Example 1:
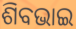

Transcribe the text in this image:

ଶିବଭାଇ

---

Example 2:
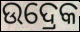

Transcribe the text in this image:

ଉଦ୍ରେକ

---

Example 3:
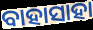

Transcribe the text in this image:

ବାହାସାହା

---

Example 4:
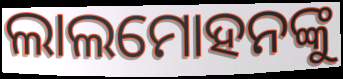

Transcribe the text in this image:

ଲାଲମୋହନଙ୍କୁ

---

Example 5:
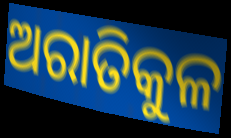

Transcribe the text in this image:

ଅରାତିକୁଳ